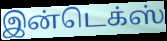
இன்டெக்ஸ்